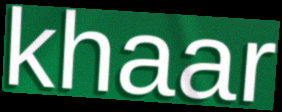
khaar